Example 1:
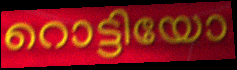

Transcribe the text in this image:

റൊട്ടിയോ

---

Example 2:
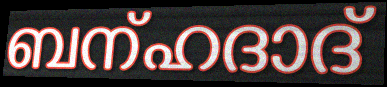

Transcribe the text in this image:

ബന്ഹദാദ്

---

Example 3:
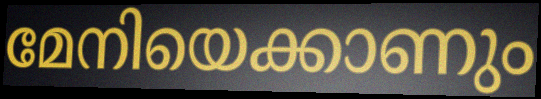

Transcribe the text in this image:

മേനിയെക്കാണും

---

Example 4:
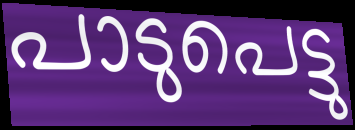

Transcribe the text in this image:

പാടുപെട്ടു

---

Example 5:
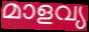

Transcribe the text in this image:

മാളവ്യ